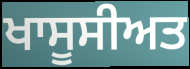
ਖਾਸੂਸੀਅਤ